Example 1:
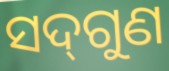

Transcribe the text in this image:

ସଦ୍‌ଗୁଣ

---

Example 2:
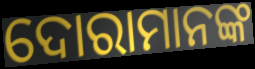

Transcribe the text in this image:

ଦୋରାମାନଙ୍କ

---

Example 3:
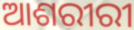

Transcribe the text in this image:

ଆଶରୀରୀ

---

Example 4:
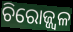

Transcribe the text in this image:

ଚିରୋଜ୍ଜ୍ଵଳ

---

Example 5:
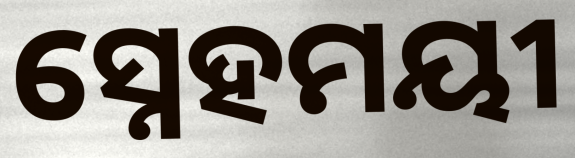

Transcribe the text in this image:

ସ୍ନେହମୟୀ